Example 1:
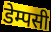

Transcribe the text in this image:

डेम्पसी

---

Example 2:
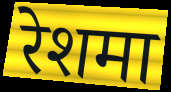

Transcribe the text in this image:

रेशमा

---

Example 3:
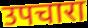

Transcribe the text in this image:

उपचारा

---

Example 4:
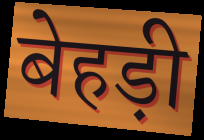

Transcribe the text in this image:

बेहड़ी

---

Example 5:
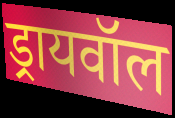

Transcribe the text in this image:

ड्रायवॉल